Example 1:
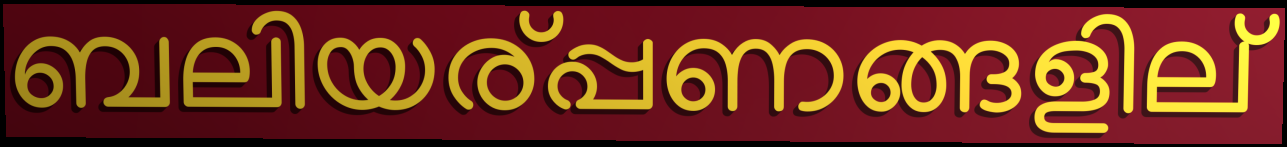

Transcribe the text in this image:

ബലിയര്പ്പണങ്ങളില്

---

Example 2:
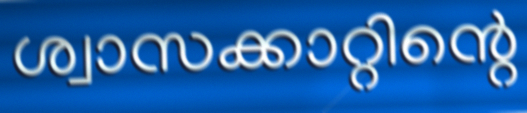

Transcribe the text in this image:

ശ്വാസക്കാറ്റിന്റെ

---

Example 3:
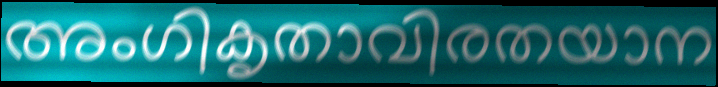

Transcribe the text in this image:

അംഗികൃതാവിരതയാന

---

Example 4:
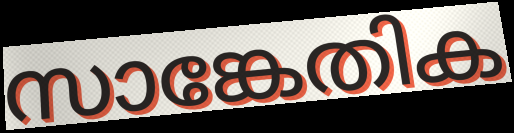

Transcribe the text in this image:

സാങ്കേതിക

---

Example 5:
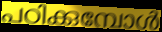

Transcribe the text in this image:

പഠിക്കുമ്പോൾ